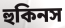
হুকিনস